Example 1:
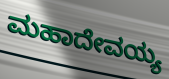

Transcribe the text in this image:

ಮಹಾದೇವಯ್ಯ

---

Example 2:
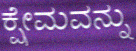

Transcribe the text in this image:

ಕ್ಷೇಮವನ್ನು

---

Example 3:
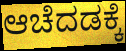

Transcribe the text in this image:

ಆಚೆದಡಕ್ಕೆ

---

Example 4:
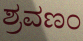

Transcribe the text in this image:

ಶ್ರವಣಂ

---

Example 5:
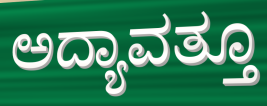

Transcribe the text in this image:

ಅದ್ಯಾವತ್ತೂ